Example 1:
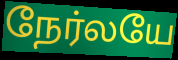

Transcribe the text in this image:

நேர்லயே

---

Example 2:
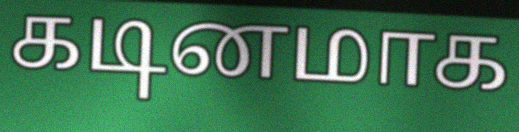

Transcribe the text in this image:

கடினமாக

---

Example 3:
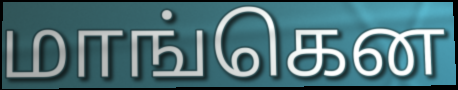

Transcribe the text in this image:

மாங்கென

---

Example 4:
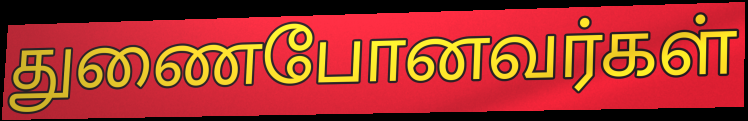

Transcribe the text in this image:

துணைபோனவர்கள்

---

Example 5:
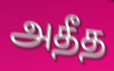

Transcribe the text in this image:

அதீத